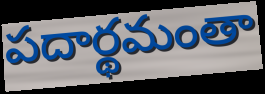
పదార్థమంతా